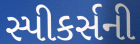
સ્પીકર્સની